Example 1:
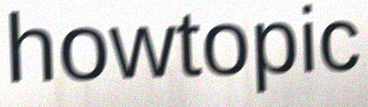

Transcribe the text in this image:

howtopic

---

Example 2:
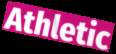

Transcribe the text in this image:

Athletic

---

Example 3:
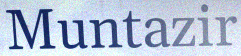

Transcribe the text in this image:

Muntazir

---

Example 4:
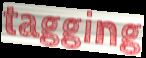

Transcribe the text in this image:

tagging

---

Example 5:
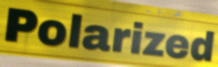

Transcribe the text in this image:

Polarized